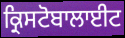
ਕ੍ਰਿਸਟੋਬਾਲਾਈਟ